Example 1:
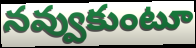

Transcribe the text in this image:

నవ్వుకుంటూ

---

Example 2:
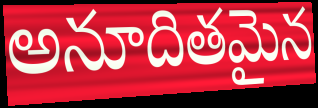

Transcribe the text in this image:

అనూదితమైన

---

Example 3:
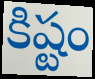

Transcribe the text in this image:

కిష్టం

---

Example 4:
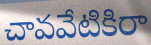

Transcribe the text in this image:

చావవేటికిరా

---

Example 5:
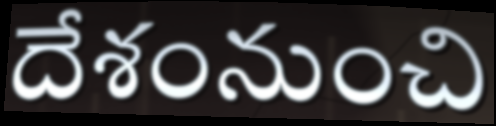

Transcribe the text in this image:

దేశంనుంచి